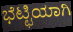
ಭೆಟ್ಟಿಯಾಗಿ